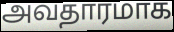
அவதாரமாக